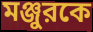
মঞ্জুরকে